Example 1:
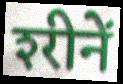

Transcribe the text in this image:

श्रीनें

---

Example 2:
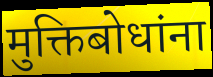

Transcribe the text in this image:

मुक्तिबोधांना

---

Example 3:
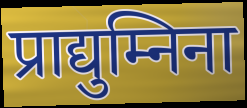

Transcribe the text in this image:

प्राद्युम्निना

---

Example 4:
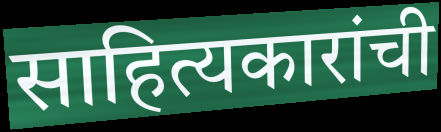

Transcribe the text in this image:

साहित्यकारांची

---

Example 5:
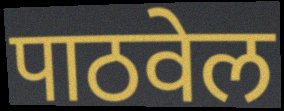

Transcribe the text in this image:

पाठवेल